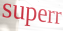
superr